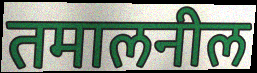
तमालनील